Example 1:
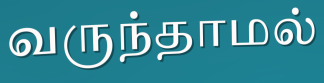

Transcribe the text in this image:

வருந்தாமல்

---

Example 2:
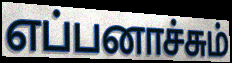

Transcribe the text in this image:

எப்பனாச்சும்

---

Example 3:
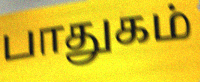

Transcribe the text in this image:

பாதுகம்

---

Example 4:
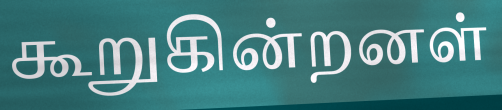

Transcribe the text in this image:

கூறுகின்றனள்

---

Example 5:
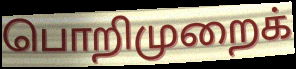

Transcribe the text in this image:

பொறிமுறைக்